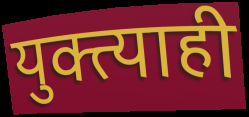
युक्त्याही